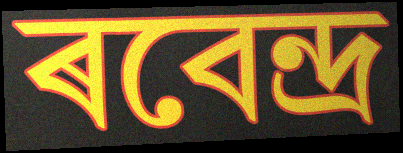
ৰবেন্দ্ৰ